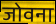
जोवना